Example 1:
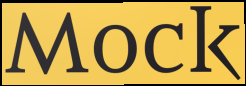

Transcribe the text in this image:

Mock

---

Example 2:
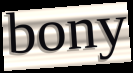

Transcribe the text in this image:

bony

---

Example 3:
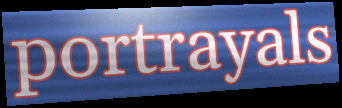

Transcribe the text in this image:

portrayals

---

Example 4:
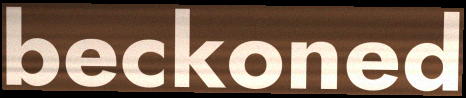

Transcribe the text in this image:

beckoned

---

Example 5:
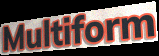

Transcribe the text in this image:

Multiform